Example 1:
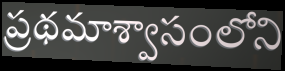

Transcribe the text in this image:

ప్రథమాశ్వాసంలోని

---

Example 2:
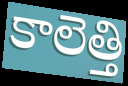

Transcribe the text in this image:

కాలెత్తి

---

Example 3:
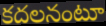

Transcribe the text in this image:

కదలనంటూ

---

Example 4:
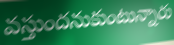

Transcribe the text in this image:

వస్తుందనుకుంటున్నారు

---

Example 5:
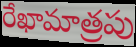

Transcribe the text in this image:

రేఖామాత్రపు